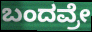
ಬಂದವ್ರೇ